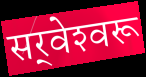
सर्वेश्वरू